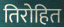
तिरोहित